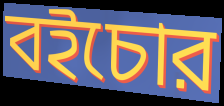
বইচোর